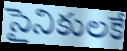
సైనికులకే